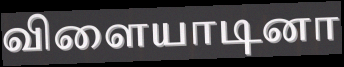
விளையாடினா